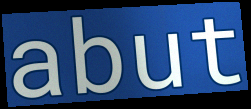
abut